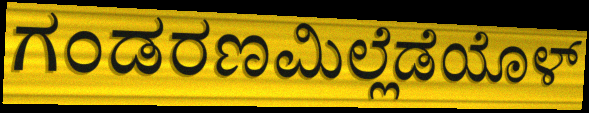
ಗಂಡರಣಮಿಲ್ಲೆಡೆಯೊಳ್